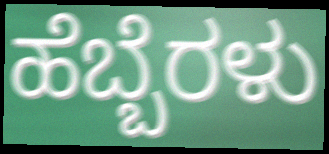
ಹೆಬ್ಬೆರಳು